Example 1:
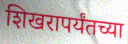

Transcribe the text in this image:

शिखरापर्यंतच्या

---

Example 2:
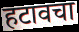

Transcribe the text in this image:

हटावचा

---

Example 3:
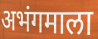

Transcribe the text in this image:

अभंगमाला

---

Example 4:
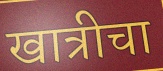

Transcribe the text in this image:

खात्रीचा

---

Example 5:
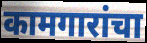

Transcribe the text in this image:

कामगारांचा